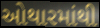
ઓથારમાંથી